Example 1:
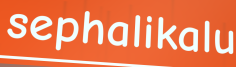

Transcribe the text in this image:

sephalikalu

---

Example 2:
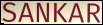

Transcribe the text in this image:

SANKAR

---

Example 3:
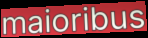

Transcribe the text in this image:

maioribus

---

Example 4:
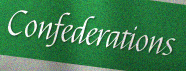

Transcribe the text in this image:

Confederations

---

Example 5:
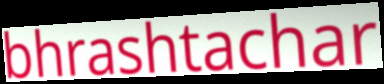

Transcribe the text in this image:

bhrashtachar